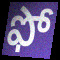
ఫో